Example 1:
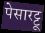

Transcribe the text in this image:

पेसारट्टू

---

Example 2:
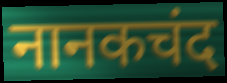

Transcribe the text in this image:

नानकचंद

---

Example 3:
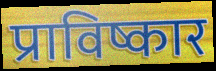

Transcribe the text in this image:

प्राविष्कार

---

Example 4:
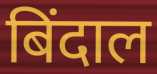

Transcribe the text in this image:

बिंदाल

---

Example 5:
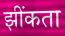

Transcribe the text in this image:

झींकता